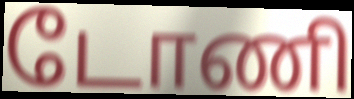
டோணி